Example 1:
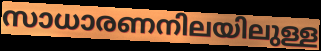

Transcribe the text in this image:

സാധാരണനിലയിലുള്ള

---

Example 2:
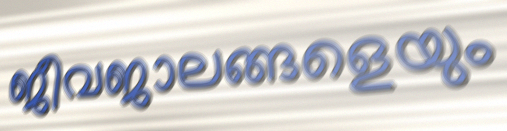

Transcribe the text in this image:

ജീവജാലങ്ങളെയും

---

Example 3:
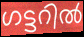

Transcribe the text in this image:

ഗട്ടറിൽ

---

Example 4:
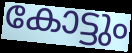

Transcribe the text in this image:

കോട്ടും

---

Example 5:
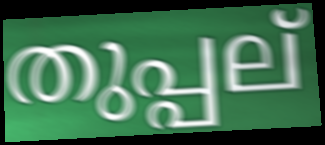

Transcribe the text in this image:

തുപ്പല്